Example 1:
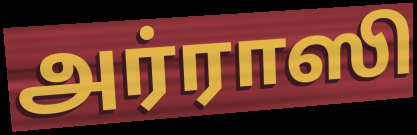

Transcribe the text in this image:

அர்ராஸி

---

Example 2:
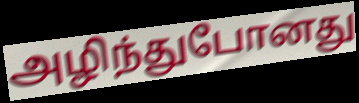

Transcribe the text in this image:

அழிந்துபோனது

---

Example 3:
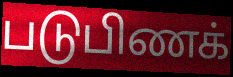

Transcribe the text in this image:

படுபிணக்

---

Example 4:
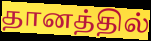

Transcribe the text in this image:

தானத்தில்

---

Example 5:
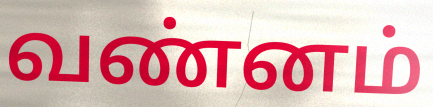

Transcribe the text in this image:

வண்னம்